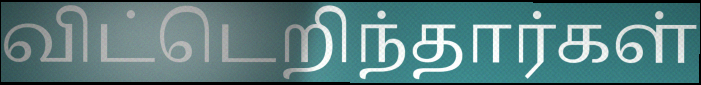
விட்டெறிந்தார்கள்